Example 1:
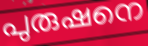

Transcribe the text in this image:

പുരുഷനെ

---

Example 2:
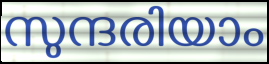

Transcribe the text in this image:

സുന്ദരിയാം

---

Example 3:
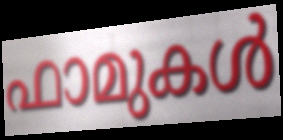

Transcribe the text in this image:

ഫാമുകൾ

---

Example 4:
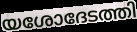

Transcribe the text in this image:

യശോദേടത്തി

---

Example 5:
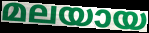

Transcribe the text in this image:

മലയായ